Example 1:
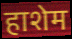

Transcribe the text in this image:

हाशेम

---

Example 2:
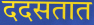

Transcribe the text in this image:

ददसतात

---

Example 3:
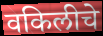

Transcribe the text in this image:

वकिलीचे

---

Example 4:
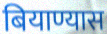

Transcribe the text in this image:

बियाण्यास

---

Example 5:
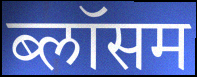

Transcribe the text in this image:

ब्लॉसम